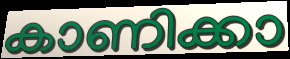
കാണിക്കാ